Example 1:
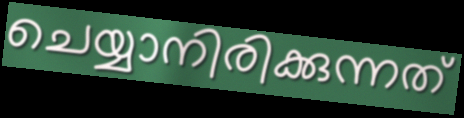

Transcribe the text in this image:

ചെയ്യാനിരിക്കുന്നത്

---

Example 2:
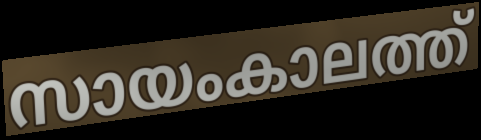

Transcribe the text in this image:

സായംകാലത്ത്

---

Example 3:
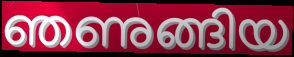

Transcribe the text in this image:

ഞണുങ്ങിയ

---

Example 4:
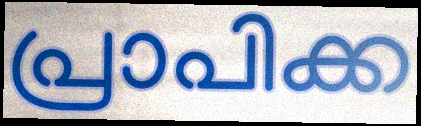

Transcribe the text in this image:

പ്രാപിക്ക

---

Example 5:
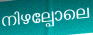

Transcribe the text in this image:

നിഴല്പോലെ